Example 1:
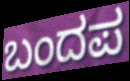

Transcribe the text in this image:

ಬಂದಪ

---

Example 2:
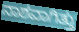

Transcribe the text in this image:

ನಾಶವಾಗಿತ್ತು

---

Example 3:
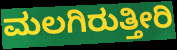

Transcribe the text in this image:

ಮಲಗಿರುತ್ತೀರಿ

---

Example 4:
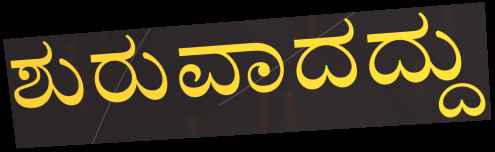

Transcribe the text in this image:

ಶುರುವಾದದ್ದು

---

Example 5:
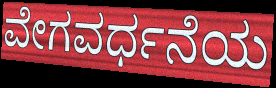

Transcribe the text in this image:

ವೇಗವರ್ಧನೆಯ